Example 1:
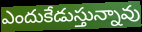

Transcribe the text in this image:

ఎందుకేడుస్తున్నావు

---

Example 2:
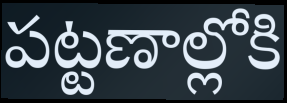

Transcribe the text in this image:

పట్టణాల్లోకి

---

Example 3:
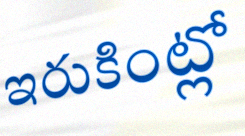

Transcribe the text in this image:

ఇరుకింట్లో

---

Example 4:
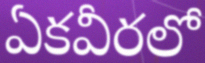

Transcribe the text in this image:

ఏకవీరలో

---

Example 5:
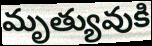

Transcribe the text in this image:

మృత్యువుకి